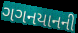
ગગનયાનની